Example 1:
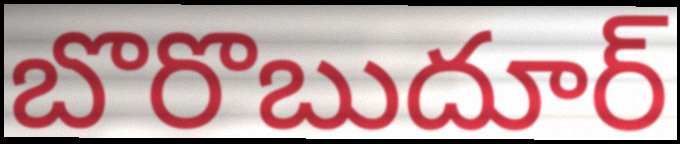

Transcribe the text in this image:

బొరొబుదూర్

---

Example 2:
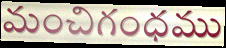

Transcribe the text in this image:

మంచిగంధము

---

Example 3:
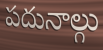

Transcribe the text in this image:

పదునాల్గు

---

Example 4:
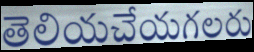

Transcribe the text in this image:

తెలియచేయగలరు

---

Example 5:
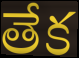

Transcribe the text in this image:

తేక